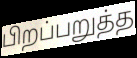
பிறப்பறுத்த